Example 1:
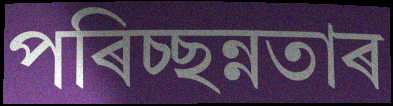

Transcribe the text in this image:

পৰিচ্ছন্নতাৰ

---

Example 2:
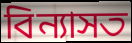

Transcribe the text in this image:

বিন্যাসত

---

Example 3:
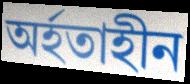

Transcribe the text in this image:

অৰ্হতাহীন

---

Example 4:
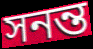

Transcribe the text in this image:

সনন্ত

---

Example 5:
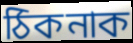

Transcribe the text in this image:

ঠিকনাক